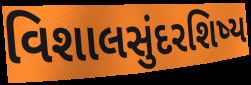
વિશાલસુંદરશિષ્ય